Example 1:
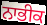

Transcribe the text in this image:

ਨਾਭੀਕ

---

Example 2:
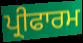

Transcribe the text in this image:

ਪ੍ਰੀਫਾਰਮ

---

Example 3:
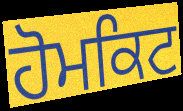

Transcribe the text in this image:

ਹੋਮਕਿਟ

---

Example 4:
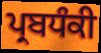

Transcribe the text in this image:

ਪ੍ਰਬਧੰਕੀ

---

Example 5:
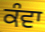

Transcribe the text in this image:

ਕੰਵਾ